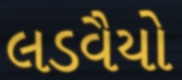
લડવૈયો